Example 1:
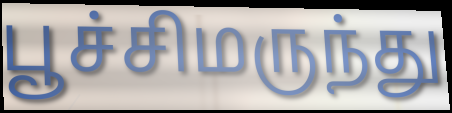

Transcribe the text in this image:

பூச்சிமருந்து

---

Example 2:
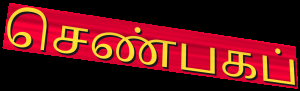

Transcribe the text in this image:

செண்பகப்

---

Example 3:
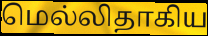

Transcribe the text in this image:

மெல்லிதாகிய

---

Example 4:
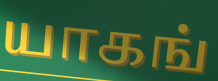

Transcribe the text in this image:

யாகங்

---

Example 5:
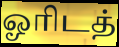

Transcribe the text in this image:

ஓரிடத்